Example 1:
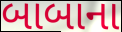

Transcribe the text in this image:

બાબાના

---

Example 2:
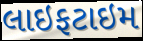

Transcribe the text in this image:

લાઇફટાઇમ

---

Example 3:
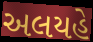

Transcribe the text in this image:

અલયહે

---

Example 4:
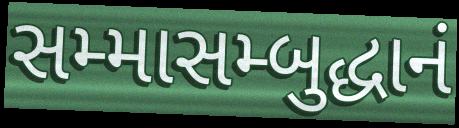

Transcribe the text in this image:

સમ્માસમ્બુદ્ધાનં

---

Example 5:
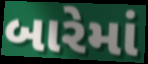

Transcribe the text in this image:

બારેમાં